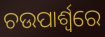
ଚଉପାର୍ଶ୍ୱରେ